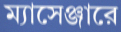
ম্যাসেঞ্জারে